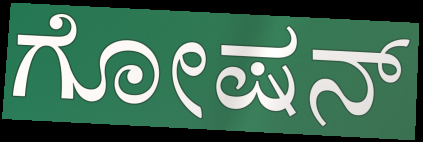
ಗೋಷನ್